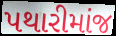
પથારીમાંજ